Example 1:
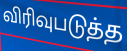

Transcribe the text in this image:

விரிவுபடுத்த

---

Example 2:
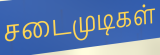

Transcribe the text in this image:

சடைமுடிகள்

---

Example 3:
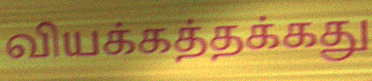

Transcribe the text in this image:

வியக்கத்தக்கது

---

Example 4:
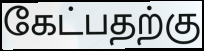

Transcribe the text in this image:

கேட்பதற்கு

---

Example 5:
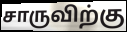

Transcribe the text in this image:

சாருவிற்கு